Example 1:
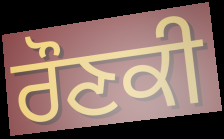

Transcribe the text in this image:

ਰੌਣਕੀ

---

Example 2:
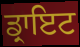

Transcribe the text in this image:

ਡ੍ਰਾਇਟ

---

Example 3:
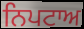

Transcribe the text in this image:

ਨਿਪਟਾਅ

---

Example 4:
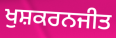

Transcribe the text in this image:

ਖੁਸ਼ਕਰਨਜੀਤ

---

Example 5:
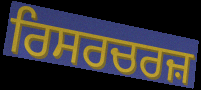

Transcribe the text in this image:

ਰਿਸਰਚਰਜ਼